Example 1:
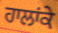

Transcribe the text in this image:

ਹਾਲਾਂਕੇ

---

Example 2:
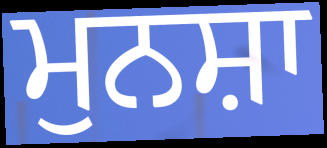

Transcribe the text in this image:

ਮੁਨਸ਼ਾ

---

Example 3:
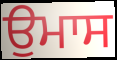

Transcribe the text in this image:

ਉਮਾਸ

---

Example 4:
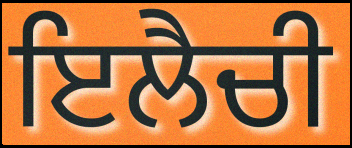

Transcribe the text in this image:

ਇਲੈਚੀ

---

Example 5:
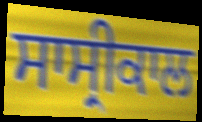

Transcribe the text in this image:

ਸਾਸ੍ਰੀਕਾਲ